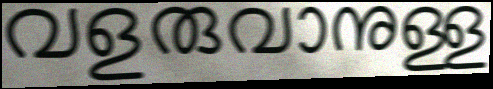
വളരുവാനുള്ള